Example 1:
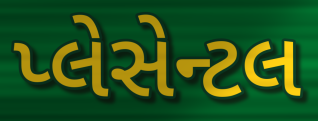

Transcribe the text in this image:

પ્લેસેન્ટલ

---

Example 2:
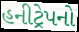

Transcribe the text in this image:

હનીટ્રેપનો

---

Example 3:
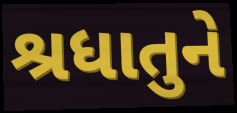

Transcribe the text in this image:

શ્રધાતુને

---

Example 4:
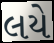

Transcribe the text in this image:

લયે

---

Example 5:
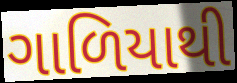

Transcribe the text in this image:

ગાળિયાથી